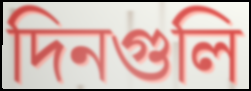
দিনগুলি